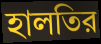
হালতির